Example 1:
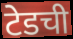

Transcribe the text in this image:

टेडची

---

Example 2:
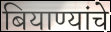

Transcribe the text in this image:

बियाण्यांचे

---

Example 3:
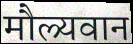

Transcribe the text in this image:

मौल्यवान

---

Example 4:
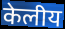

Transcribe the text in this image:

केलीय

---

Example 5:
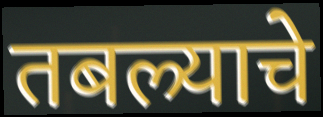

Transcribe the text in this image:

तबल्याचे